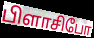
பிளாசிபோ